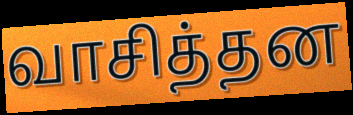
வாசித்தன